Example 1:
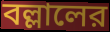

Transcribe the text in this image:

বল্লালের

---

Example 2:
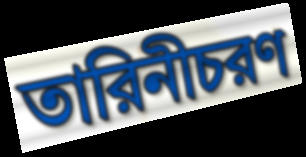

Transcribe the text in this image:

তারিনীচরণ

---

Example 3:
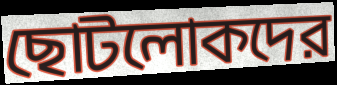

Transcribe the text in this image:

ছোটলোকদের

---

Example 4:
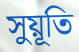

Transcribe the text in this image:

সুয়ূতি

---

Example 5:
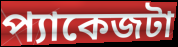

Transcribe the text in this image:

প্যাকেজটা